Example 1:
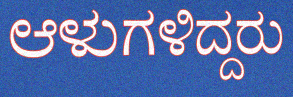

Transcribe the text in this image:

ಆಳುಗಳಿದ್ದರು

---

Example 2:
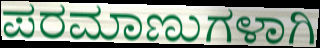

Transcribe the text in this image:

ಪರಮಾಣುಗಳಾಗಿ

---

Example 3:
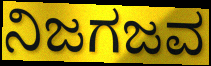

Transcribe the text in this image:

ನಿಜಗಜವ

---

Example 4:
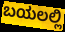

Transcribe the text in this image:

ಬಯಲಲ್ಲಿ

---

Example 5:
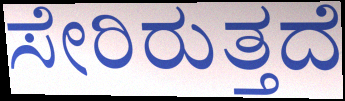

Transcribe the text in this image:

ಸೇರಿರುತ್ತದೆ